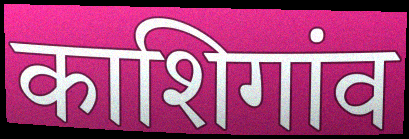
काशिगांव